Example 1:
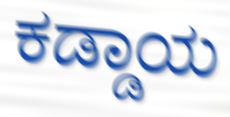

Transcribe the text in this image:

ಕಡ್ಡಾಯ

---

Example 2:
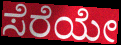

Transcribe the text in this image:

ಸೆರೆಯೇ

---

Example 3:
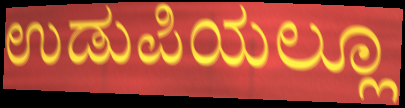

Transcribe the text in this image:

ಉಡುಪಿಯಲ್ಲೂ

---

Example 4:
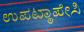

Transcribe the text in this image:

ಉಪಟ್ಠಾಪೇಸಿ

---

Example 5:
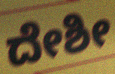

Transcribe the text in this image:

ದೇಶೀ